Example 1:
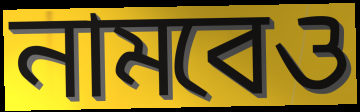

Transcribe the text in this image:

নামবেও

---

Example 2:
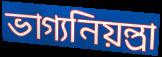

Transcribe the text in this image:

ভাগ্যনিয়ন্ত্রা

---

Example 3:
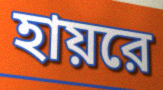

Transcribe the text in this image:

হায়রে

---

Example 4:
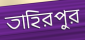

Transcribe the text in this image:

তাহিরপুর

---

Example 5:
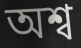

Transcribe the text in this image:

অশ্ব